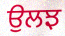
ਉਲਝ